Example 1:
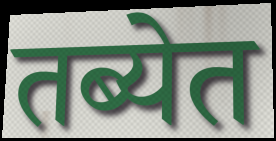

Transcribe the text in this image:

तब्येत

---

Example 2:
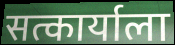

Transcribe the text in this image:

सत्कार्याला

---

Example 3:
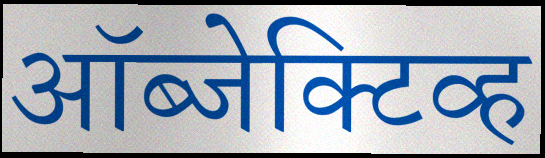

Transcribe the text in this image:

ऑब्जेक्टिव्ह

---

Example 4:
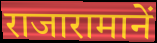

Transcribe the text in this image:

राजारामानें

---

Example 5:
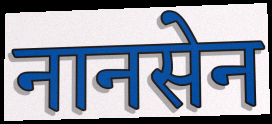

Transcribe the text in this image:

नानसेन